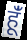
हूंँ